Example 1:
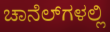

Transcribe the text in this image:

ಚಾನೆಲ್‍ಗಳಲ್ಲಿ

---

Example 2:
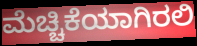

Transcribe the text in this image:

ಮೆಚ್ಚಿಕೆಯಾಗಿರಲಿ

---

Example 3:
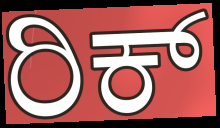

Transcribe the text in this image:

ರಿಕ್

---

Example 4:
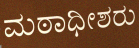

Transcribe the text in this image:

ಮಠಾಧೀಶರು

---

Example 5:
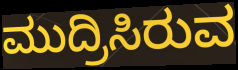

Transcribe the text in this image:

ಮುದ್ರಿಸಿರುವ